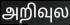
அறிவுல